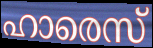
ഹാരെസ്